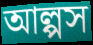
আল্পস